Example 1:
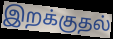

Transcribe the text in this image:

இறக்குதல்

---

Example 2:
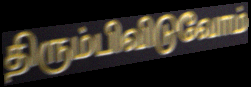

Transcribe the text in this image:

திரும்பிவிடுவோம்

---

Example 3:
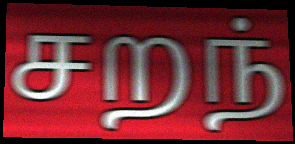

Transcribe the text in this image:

சறந்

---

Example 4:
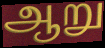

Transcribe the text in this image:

ஆறு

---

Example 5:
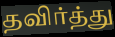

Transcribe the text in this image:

தவிர்த்து